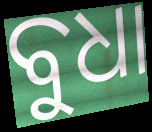
ବୁଧା